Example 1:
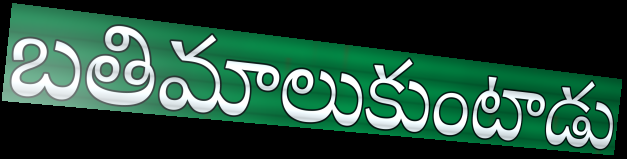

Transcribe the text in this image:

బతిమాలుకుంటాడు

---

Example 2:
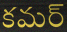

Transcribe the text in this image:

కమర్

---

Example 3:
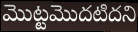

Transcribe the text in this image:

మొట్టమొదటిదని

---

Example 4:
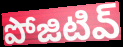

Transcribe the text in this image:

పోజిటివ్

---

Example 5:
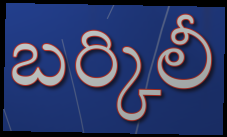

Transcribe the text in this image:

బర్కిలీ